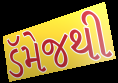
ડૅમેજથી